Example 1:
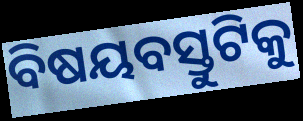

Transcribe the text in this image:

ବିଷୟବସ୍ତୁଟିକୁ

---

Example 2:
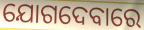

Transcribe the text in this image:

ଯୋଗଦେବାରେ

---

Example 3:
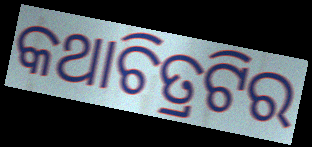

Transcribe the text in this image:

କଥାଚିତ୍ରଟିର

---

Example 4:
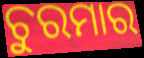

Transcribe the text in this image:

ଚୁରମାର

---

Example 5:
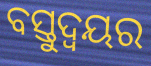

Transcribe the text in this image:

ବସ୍ତୁଦ୍ୱୟର